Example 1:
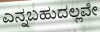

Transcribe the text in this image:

ಎನ್ನಬಹುದಲ್ಲವೇ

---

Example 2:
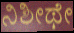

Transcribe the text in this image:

ನಿಶೀಥೇ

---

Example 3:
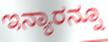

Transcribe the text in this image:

ಇನ್ಯಾರನ್ನೂ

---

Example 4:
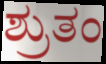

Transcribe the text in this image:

ಶ್ರುತಂ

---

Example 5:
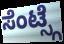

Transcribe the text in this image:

ಸೆಂಟ್ಸ್ಗೆ